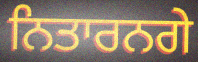
ਨਿਤਾਰਨਗੇ